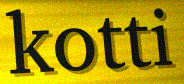
kotti